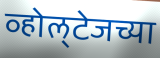
व्होल्टेजच्या